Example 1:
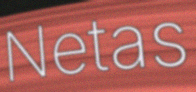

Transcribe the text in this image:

Netas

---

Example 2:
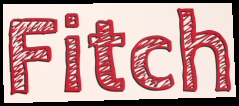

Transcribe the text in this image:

Fitch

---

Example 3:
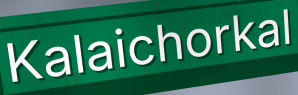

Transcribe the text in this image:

Kalaichorkal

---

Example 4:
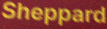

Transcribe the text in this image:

Sheppard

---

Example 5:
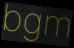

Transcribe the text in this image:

bgm